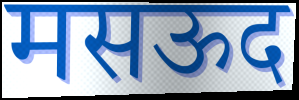
मसऊद